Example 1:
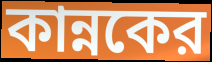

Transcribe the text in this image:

কান্নকের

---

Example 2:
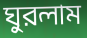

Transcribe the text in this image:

ঘুরলাম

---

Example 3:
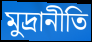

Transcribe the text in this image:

মুদ্রানীতি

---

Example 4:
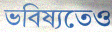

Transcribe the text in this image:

ভবিষ্যতেও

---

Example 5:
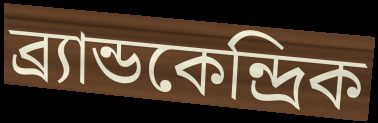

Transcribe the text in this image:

ব্র্যান্ডকেন্দ্রিক